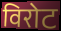
विरोट